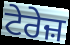
ਟੇਰੇਜ਼